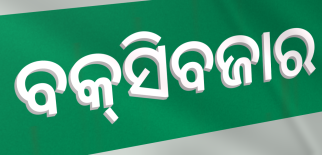
ବକ୍‍ସିବଜାର